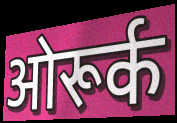
ओरूर्क